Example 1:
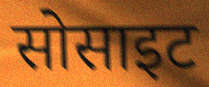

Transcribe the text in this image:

सोसाइट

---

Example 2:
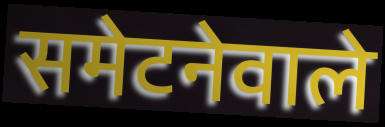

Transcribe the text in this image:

समेटनेवाले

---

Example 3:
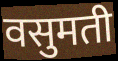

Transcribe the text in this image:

वसुमती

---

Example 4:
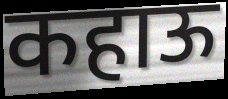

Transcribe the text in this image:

कहाऊ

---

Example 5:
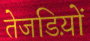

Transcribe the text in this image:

तेजडिय़ों